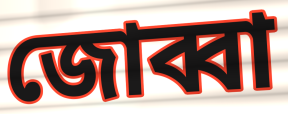
জোব্বা